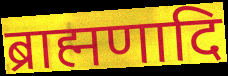
ब्राह्मणादि